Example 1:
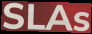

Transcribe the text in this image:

SLAs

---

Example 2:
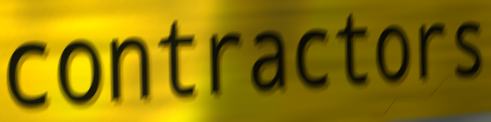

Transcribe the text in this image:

contractors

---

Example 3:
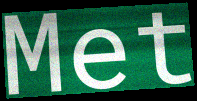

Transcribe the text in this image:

Met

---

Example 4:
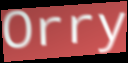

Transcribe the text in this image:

Orry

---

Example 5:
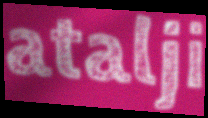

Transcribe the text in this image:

atalji